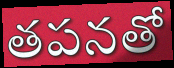
తపనతో